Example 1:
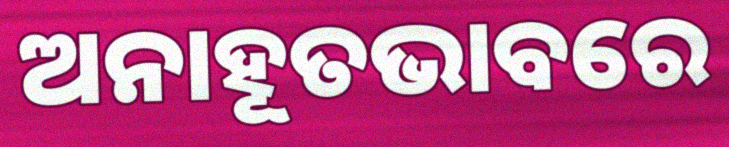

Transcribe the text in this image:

ଅନାହୂତଭାବରେ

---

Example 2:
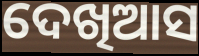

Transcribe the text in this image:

ଦେଖିଆସ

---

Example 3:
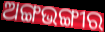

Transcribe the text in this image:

ଅଙ୍ଗଭଙ୍ଗୀର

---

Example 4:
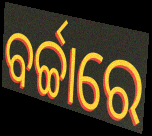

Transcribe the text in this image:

ବର୍ଚ୍ଚାରେ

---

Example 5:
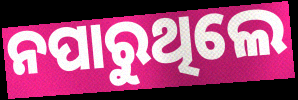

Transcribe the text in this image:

ନପାରୁଥିଲେ